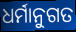
ଧର୍ମାନୁଗତ